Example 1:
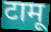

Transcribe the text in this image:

टामू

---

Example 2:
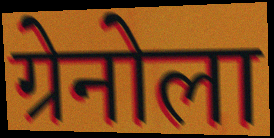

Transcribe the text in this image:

ग्रेनोला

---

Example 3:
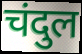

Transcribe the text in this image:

चंदुल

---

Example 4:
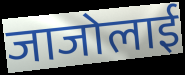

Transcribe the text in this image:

जाजोलाई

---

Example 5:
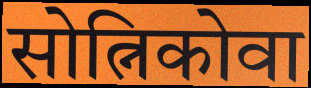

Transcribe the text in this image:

सोत्निकोवा